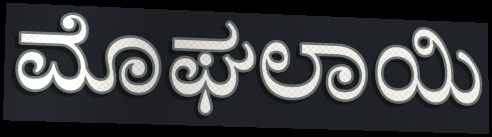
ಮೊಘಲಾಯಿ